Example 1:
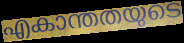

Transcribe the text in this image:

എകാന്തതയുടെ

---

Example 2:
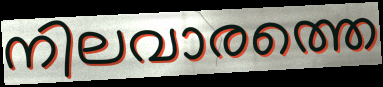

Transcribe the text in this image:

നിലവാരത്തെ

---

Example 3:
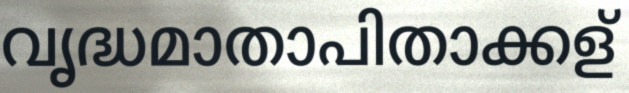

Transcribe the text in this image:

വൃദ്ധമാതാപിതാക്കള്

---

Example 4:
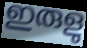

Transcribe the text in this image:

ഇരുളു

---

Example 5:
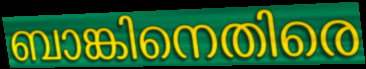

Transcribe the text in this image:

ബാങ്കിനെതിരെ